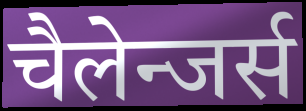
चैलेन्जर्स